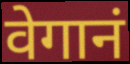
वेगानं